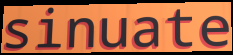
sinuate